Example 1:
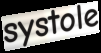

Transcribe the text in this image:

systole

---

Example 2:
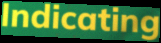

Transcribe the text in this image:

Indicating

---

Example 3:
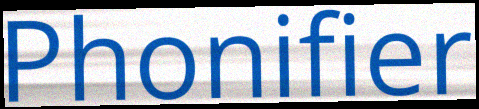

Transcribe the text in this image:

Phonifier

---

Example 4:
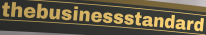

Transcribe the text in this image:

thebusinessstandard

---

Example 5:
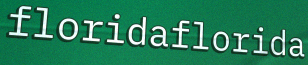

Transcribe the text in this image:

floridaflorida